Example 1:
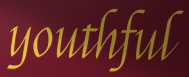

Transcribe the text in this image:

youthful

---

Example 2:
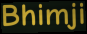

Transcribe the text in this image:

Bhimji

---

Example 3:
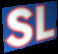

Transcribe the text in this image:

SL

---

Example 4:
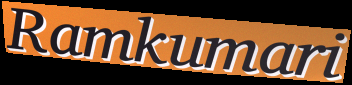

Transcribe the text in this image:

Ramkumari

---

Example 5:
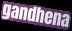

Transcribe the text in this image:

gandhena